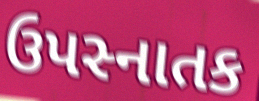
ઉપસ્નાતક